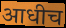
आधीच